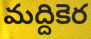
మద్దికెర